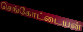
செங்கோட்டையன்